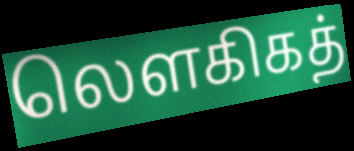
லௌகிகத்